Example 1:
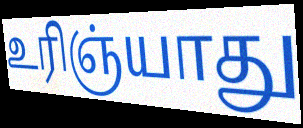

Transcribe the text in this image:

உரிஞ்யாது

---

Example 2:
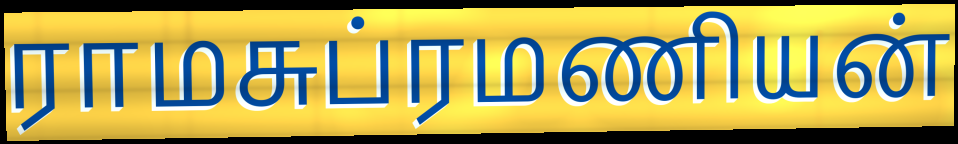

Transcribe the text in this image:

ராமசுப்ரமணியன்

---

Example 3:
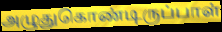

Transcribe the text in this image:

அழுதுகொண்டிருப்பாள்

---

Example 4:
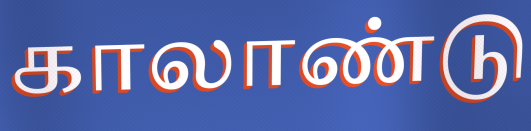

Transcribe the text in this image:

காலாண்டு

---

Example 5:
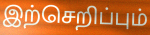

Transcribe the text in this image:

இற்செறிப்பும்